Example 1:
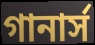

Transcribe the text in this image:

গানার্স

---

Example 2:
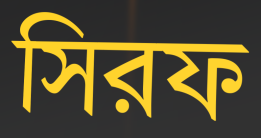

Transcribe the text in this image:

সিরফ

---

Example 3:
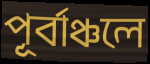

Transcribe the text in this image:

পূর্বাঞ্চলে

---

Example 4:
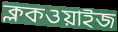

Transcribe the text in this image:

ক্লকওয়াইজ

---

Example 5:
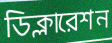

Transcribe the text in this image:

ডিক্লারেশন